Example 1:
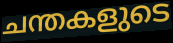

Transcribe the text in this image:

ചന്തകളുടെ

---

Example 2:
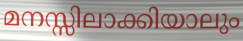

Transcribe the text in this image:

മനസ്സിലാക്കിയാലും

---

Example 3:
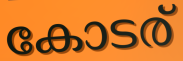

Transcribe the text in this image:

കോടര്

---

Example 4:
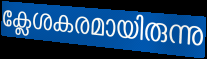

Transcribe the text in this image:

ക്ലേശകരമായിരുന്നു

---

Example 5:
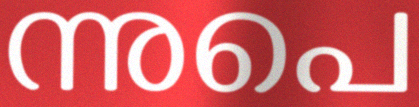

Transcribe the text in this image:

ന്നുപെ